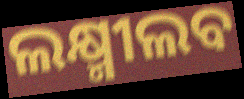
ଲକ୍ଷ୍ମୀଲବ